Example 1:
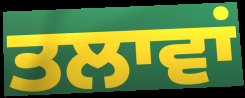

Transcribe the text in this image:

ਤਲਾਵਾਂ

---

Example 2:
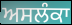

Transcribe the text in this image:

ਅਸਲੰਕਾ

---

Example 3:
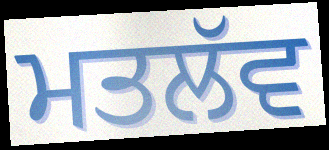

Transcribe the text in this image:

ਮਤਲੱਵ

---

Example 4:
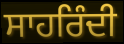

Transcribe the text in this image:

ਸਾਹਰਿੰਦੀ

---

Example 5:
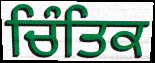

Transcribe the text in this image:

ਚਿੰਤਿਕ